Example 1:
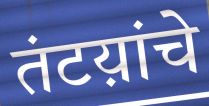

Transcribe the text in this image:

तंटय़ांचे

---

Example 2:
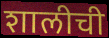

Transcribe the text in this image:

शालीची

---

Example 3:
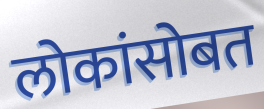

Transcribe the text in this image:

लोकांसोबत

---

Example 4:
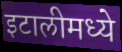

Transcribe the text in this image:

इटालीमध्ये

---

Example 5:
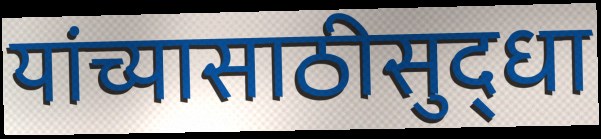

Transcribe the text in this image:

यांच्यासाठीसुद्धा